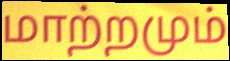
மாற்றமும்